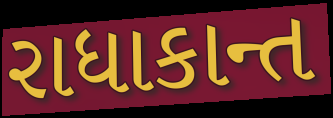
રાધાકાન્ત